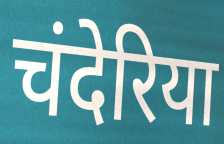
चंदेरिया